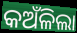
କଅଁଳିଲା